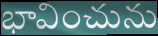
భావించును